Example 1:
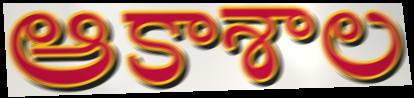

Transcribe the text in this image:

ఆకాశాల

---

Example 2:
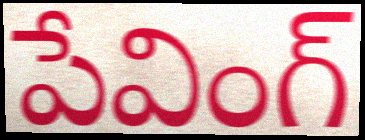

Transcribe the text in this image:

పేవింగ్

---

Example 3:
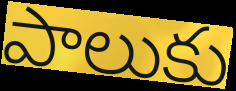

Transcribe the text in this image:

పాలుకు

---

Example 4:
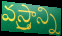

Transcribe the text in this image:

వస్ర్తాన్ని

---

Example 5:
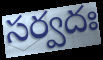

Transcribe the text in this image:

సర్వదః